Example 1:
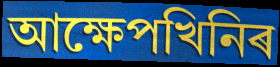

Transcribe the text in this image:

আক্ষেপখিনিৰ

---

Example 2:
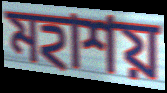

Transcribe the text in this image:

মহাশয়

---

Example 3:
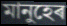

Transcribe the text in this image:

মানুহেৰ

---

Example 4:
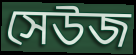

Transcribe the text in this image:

সেউজ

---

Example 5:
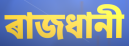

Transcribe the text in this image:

ৰাজধানী